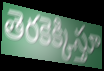
తెరకెక్కిస్తూ